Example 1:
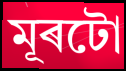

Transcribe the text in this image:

মূৰটো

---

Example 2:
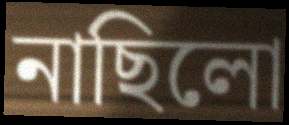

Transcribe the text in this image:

নাছিলো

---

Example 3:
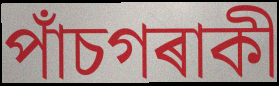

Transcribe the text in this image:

পাঁচগৰাকী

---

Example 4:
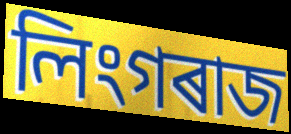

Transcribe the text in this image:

লিংগৰাজ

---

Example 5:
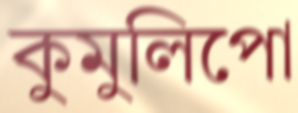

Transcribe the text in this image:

কুমুলিপো